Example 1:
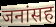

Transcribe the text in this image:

जनांसह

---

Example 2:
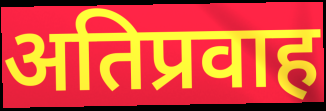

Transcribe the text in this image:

अतिप्रवाह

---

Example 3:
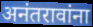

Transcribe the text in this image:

अनंतरावांना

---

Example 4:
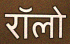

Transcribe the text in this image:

रॉलो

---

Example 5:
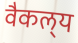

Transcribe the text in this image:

वैकल्य